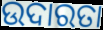
ଉଦାରତା